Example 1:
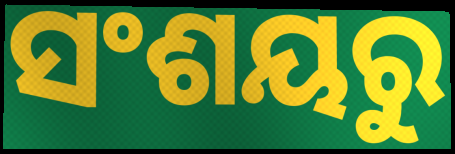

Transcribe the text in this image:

ସଂଶୟରୁ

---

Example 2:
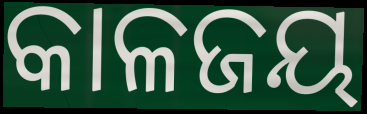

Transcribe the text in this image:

କାଳଜୟ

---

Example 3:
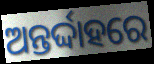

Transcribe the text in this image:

ଅନ୍ତର୍ଦ୍ଦାହରେ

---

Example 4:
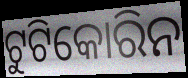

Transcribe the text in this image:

ଟୁଟିକୋରିନ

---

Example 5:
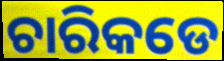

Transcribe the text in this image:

ଚାରିକଡେ